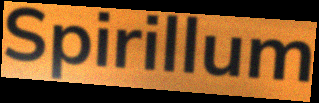
Spirillum